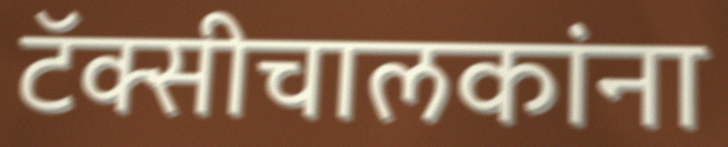
टॅक्सीचालकांना